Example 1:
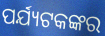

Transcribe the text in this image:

ପର୍ଯ୍ୟଟକଙ୍କର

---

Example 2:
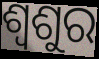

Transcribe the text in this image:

ଶ୍ଵଶୁର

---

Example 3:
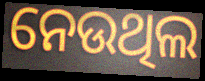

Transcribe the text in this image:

ନେଉଥିଲ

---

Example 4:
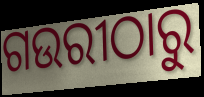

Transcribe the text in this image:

ଗଉରୀଠାରୁ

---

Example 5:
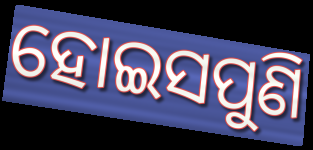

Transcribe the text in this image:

ହୋଇସପୁଣି